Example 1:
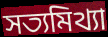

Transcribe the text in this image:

সত্যমিথ্যা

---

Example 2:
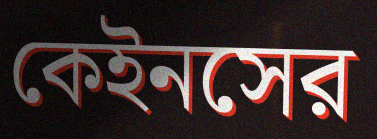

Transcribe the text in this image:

কেইনসের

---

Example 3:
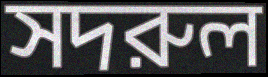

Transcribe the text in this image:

সদরুল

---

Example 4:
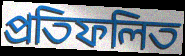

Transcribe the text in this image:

প্রতিফলিত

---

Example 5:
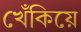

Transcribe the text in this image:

খেঁকিয়ে